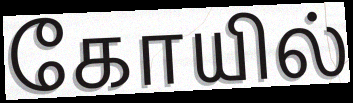
கோயில்